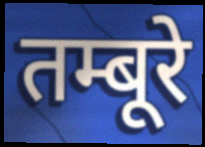
तम्बूरे